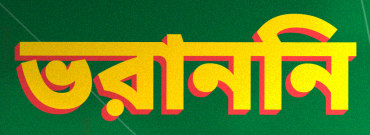
ভরাননি